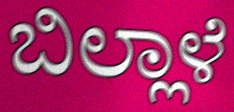
ಬಿಲ್ಲಾಳೆ